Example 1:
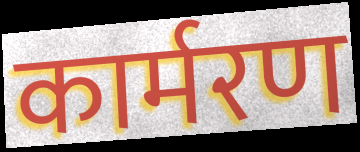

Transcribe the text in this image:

कार्मरण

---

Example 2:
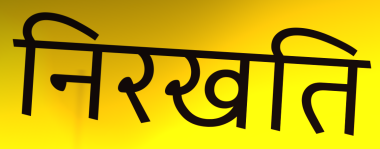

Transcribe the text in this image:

निरखति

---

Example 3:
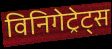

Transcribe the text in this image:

विनिगेट्रेट्स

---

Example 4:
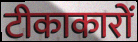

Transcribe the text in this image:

टीकाकारों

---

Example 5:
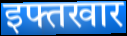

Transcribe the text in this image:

इफ्तखार